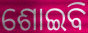
ଶୋଇବି